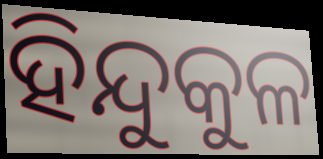
ହିନ୍ଦୁକୁଳ